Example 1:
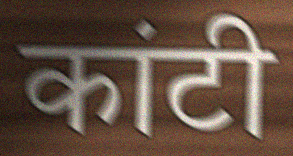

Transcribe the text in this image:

कांटी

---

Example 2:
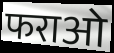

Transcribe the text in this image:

फराओ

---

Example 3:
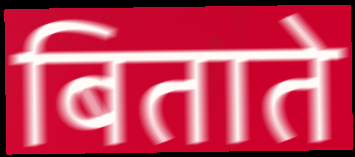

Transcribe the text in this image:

बिताते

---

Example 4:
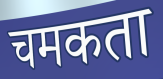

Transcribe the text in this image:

चमकता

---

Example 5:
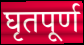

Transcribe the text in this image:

घृतपूर्ण